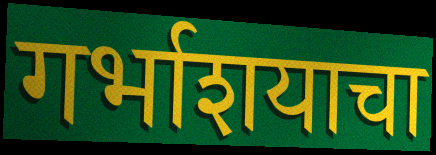
गर्भाशयाचा